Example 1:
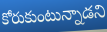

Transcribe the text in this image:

కోరుకుంటున్నాడని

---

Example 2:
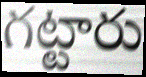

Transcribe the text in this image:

గట్టారు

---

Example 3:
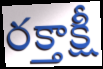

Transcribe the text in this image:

రక్తాక్షీ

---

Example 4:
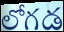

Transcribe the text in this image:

లోగడ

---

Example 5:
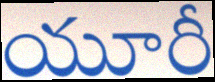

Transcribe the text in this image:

యూరీ